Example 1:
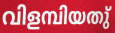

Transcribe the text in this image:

വിളമ്പിയതു്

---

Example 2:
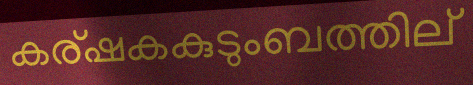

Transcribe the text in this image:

കര്ഷകകുടുംബത്തില്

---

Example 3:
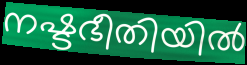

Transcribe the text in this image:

നഷ്ടഭീതിയിൽ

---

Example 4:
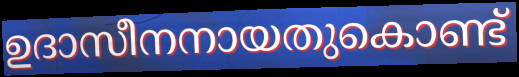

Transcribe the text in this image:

ഉദാസീനനായതുകൊണ്ട്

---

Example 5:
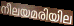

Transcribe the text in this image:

നീലയമരിയില